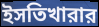
ইসতিখারার